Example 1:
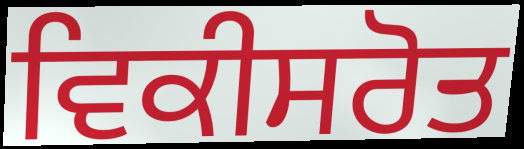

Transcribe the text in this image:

ਵਿਕੀਸਰੋਤ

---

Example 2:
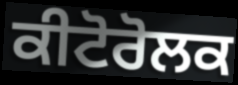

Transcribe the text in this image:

ਕੀਟੋਰੋਲਕ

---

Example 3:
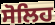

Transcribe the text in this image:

ਸੋਲਿਹ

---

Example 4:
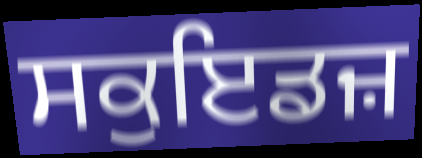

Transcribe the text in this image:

ਸਕੁਇਡਜ਼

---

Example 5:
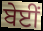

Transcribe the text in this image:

ਬੇਈਂ